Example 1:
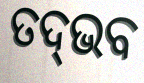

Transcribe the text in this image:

ତଦ୍‌ଭବ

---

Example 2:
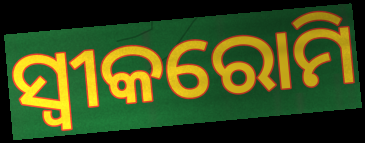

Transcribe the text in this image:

ସ୍ଵୀକରୋମି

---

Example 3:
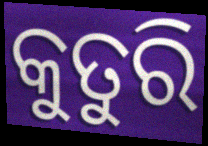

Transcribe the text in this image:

କୁତୁରି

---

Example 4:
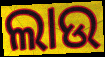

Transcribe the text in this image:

ଲାଉ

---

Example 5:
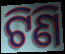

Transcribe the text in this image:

ଟିଣି